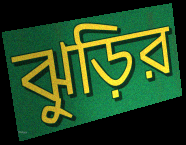
ঝুড়ির